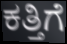
ಕತ್ತಿಗೆ